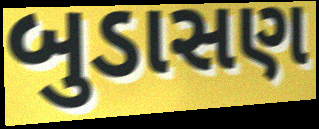
બુડાસણ